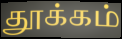
தூக்கம்